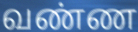
வண்ண